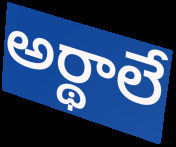
అర్థాలే